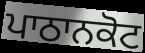
ਪਾਠਾਨਕੋਟ